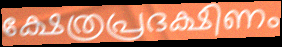
ക്ഷേത്രപ്രദക്ഷിണം